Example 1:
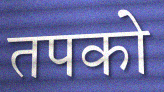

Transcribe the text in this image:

तपको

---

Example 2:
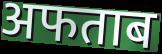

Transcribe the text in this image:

अफताब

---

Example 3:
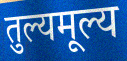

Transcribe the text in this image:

तुल्यमूल्य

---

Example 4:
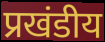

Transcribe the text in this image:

प्रखंडीय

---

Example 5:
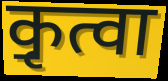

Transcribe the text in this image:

कृ॒त्वा